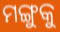
ମଙ୍ଗୁକୁ